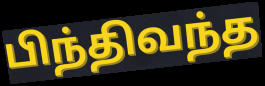
பிந்திவந்த